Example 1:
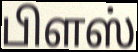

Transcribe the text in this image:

பிளஸ்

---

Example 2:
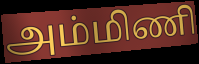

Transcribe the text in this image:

அம்மிணி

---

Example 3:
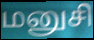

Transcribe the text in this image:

மனுசி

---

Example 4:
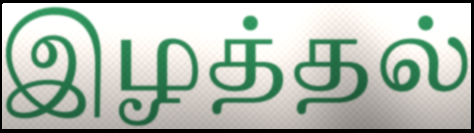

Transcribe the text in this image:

இழத்தல்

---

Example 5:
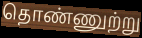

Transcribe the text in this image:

தொண்ணுற்று